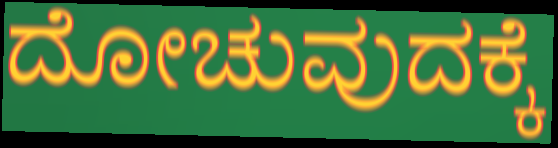
ದೋಚುವುದಕ್ಕೆ